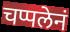
चप्पलेनं